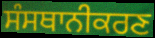
ਸੰਸਥਾਨੀਕਰਣ